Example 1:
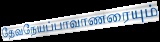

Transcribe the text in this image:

தேவநேயப்பாவாணரையும்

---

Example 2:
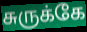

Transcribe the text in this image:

சுருக்கே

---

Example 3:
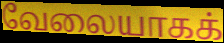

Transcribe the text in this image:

வேலையாகக்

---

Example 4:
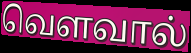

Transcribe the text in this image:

வெளவால்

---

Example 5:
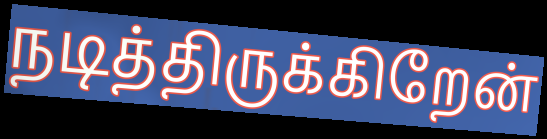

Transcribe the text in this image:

நடித்திருக்கிறேன்